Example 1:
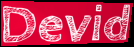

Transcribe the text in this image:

Devid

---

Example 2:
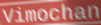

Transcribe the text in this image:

Vimochan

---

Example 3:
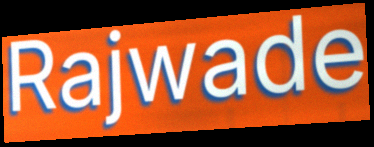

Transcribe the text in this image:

Rajwade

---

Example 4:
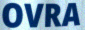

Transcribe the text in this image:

OVRA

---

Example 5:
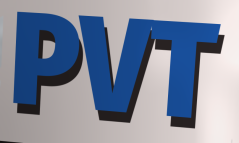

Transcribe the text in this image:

PVT